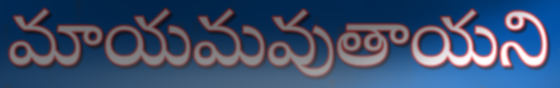
మాయమవుతాయని